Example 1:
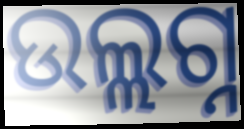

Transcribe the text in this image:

ଉଲ୍ଲଗ୍ନ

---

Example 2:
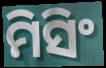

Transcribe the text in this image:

ମିସିଂ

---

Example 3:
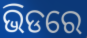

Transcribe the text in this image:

ଭିଡରେ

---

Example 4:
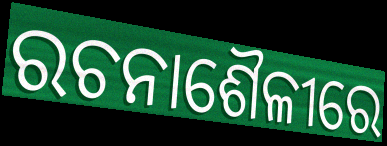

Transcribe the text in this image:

ରଚନାଶୈଳୀରେ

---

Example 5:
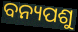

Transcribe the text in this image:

ବନ୍ୟପଶୁ